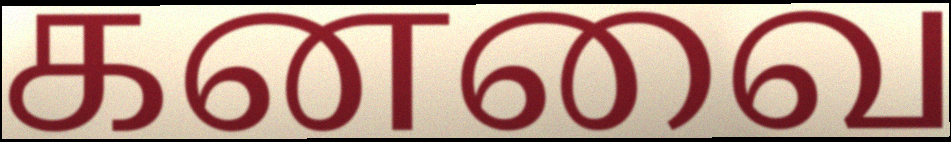
கனவை